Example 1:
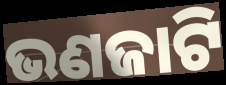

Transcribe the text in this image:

ଭଣଜାଟି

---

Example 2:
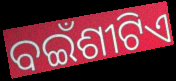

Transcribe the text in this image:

ବଇଁଶୀଟିଏ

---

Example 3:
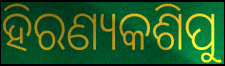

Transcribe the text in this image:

ହିରଣ୍ୟକଶିପୁ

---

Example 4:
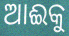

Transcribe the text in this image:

ଆଈକୁ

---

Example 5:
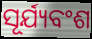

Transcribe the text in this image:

ସୂର୍ଯ୍ୟବଂଶ